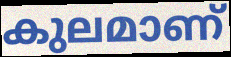
കുലമാണ്